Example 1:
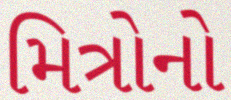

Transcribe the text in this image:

મિત્રોનો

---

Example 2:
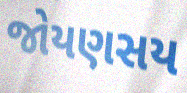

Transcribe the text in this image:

જોયણસય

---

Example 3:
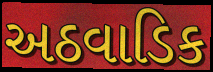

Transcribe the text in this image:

અઠવાડિક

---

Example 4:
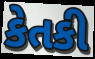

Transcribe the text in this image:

કેતકી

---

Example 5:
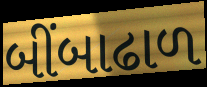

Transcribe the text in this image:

બીંબાઢાળ